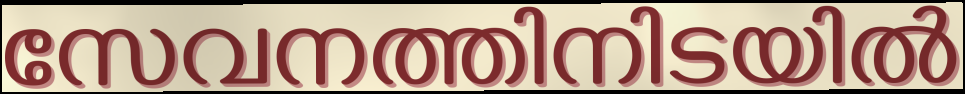
സേവനത്തിനിടയിൽ